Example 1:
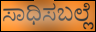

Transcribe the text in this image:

ಸಾಧಿಸಬಲ್ಲೆ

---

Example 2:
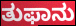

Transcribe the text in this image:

ತುಫಾನು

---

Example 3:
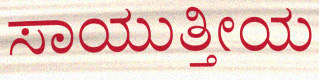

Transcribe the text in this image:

ಸಾಯುತ್ತೀಯ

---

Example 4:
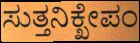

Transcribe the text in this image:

ಸುತ್ತನಿಕ್ಖೇಪಂ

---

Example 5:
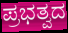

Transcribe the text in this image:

ಪ್ರಭತ್ವದ